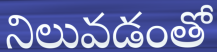
నిలువడంతో